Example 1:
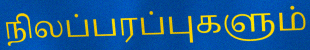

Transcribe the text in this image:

நிலப்பரப்புகளும்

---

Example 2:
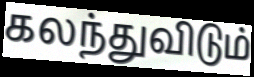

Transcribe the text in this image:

கலந்துவிடும்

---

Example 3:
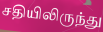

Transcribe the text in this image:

சதியிலிருந்து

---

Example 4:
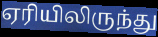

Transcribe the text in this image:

ஏரியிலிருந்து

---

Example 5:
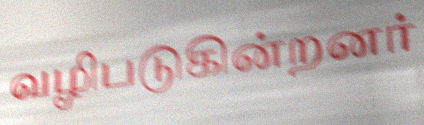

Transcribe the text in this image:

வழிபடுகின்றனர்